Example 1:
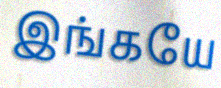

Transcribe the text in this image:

இங்கயே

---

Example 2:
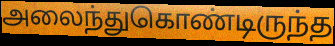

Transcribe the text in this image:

அலைந்துகொண்டிருந்த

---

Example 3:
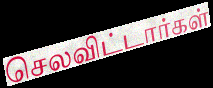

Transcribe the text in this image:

செலவிட்டார்கள்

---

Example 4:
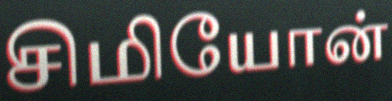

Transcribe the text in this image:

சிமியோன்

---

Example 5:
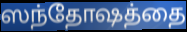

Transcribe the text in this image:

ஸந்தோஷத்தை